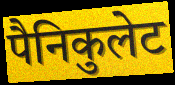
पैनिकुलेट